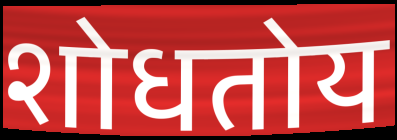
शोधतोय